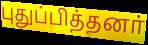
புதுப்பித்தனர்